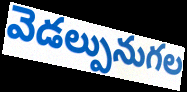
వెడల్పునుగల